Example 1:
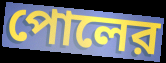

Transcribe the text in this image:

পোলের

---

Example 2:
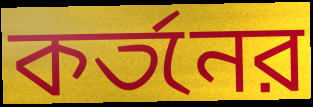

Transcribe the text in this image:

কর্তনের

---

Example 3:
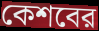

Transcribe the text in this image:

কেশবের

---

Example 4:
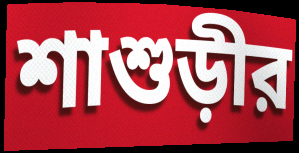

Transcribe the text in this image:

শাশুড়ীর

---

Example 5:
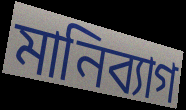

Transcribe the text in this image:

মানিব্যাগ